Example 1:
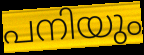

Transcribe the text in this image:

പനിയും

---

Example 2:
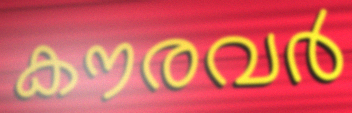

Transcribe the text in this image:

കൗരവർ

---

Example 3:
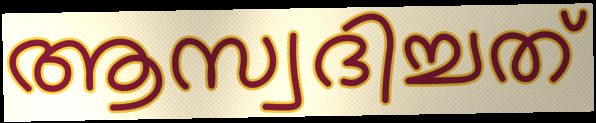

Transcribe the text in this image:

ആസ്വദിച്ചത്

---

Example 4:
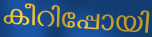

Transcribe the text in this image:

കീറിപ്പോയി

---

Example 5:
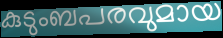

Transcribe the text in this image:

കുടുംബപരവുമായ